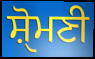
ਸ਼ੑੋਮਣੀ